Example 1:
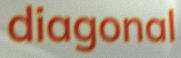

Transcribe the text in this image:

diagonal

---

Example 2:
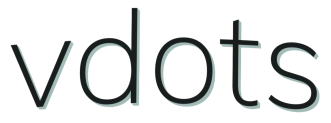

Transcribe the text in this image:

vdots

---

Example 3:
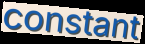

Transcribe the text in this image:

constant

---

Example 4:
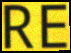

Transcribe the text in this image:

RE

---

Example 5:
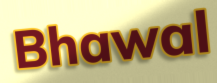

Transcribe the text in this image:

Bhawal